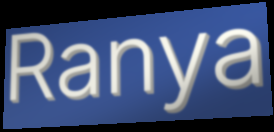
Ranya